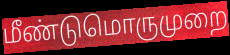
மீண்டுமொருமுறை